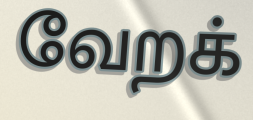
வேறக்